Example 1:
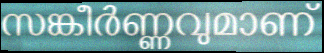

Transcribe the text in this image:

സങ്കീർണ്ണവുമാണ്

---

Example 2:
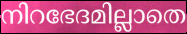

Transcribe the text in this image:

നിറഭേദമില്ലാതെ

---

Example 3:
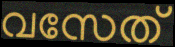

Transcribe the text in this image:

വസേത്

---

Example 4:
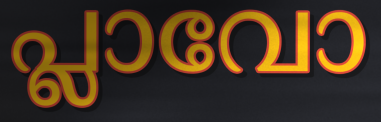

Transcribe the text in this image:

പ്ലാവോ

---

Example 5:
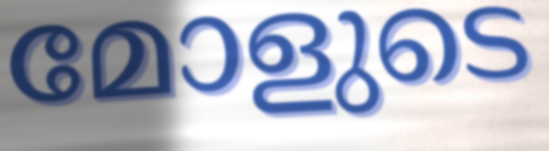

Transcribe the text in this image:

മോളുടെ